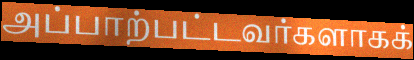
அப்பாற்பட்டவர்களாகக்